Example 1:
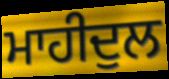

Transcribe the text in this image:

ਮਾਹੀਦੁਲ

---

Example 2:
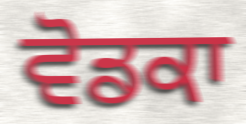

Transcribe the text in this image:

ਵੋਡਕਾ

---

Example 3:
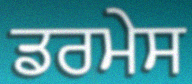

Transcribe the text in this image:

ਡਰਮੇਸ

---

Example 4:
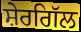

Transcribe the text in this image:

ਸ਼ੇਰਗਿੱਲ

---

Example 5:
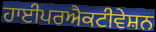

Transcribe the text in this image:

ਹਾਈਪਰਐਕਟੀਵੇਸ਼ਨ